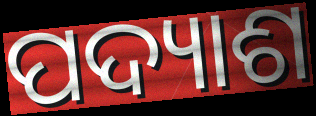
ପଦ୍ୟାଶ